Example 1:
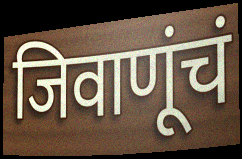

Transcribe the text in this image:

जिवाणूंचं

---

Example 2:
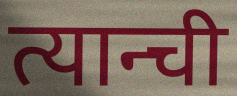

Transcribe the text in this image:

त्यान्ची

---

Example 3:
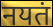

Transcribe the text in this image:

नयतं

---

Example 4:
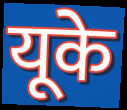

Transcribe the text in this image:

यूके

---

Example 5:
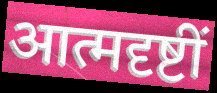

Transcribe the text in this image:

आत्मदृष्टीं